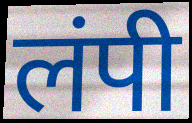
लंपी